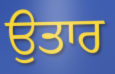
ਉਤਾਰ